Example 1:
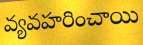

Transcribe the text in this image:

వ్యవహరించాయి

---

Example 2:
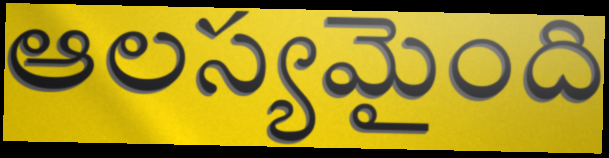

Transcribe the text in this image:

ఆలస్యమైంది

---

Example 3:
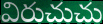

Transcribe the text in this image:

విరుచుచు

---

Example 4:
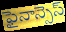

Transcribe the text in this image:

ఫైనాన్సెస్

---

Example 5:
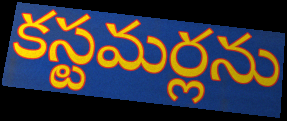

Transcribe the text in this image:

కస్టమర్లను